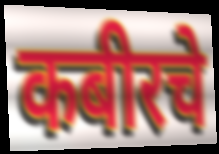
कबीरचे